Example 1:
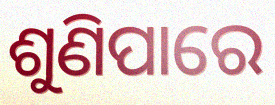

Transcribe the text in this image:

ଶୁଣିପାରେ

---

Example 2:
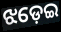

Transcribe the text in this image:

ଝଡ଼େଇ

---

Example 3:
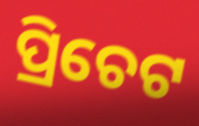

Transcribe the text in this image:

ପ୍ରିଚେଟ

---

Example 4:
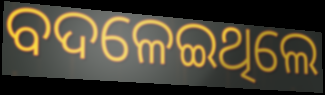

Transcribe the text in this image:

ବଦଳେଇଥିଲେ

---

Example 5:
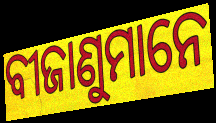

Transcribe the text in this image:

ବୀଜାଣୁମାନେ